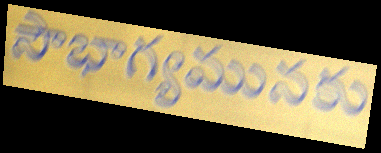
సౌభాగ్యమునకు